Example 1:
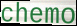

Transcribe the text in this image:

chemo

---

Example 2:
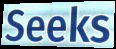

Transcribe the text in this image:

Seeks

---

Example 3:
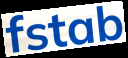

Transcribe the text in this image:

fstab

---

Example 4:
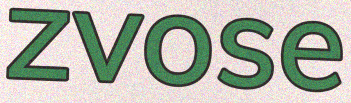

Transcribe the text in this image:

zvose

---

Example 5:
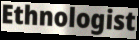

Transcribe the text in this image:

Ethnologist